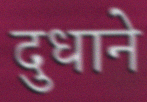
दुधाने